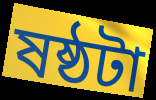
ষষ্ঠটা